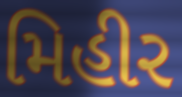
મિહીર